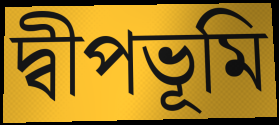
দ্বীপভূমি